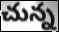
చున్న